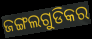
ଜଙ୍ଗଲଗୁଡିକର